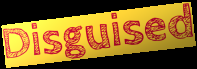
Disguised